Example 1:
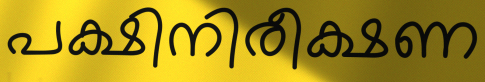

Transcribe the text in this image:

പക്ഷിനിരീക്ഷണ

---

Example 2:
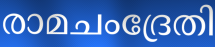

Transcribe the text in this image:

രാമചംദ്രേതി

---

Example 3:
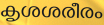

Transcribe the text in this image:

കൃശശരീരം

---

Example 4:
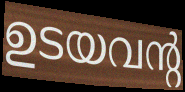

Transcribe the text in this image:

ഉടയവന്റ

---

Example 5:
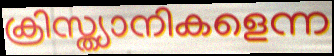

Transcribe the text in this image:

ക്രിസ്ത്യാനികളെന്ന